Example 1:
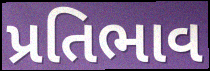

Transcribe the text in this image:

પ્રતિભાવ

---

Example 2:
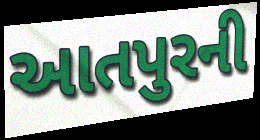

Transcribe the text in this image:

આતપુરની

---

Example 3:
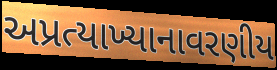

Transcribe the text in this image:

અપ્રત્યાખ્યાનાવરણીય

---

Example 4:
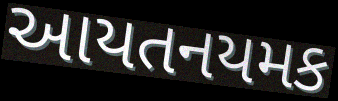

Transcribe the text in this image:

આયતનયમક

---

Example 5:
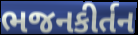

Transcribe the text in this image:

ભજનકીર્તન